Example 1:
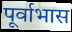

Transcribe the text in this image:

पूर्वाभास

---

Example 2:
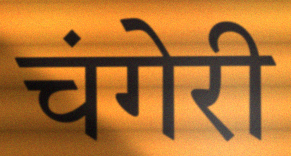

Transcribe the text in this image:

चंगेरी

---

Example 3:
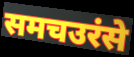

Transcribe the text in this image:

समचउरंसे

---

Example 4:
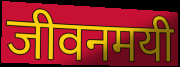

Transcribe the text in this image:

जीवनमयी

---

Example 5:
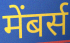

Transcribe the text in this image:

मेंबर्स